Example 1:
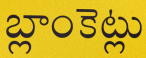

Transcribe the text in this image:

బ్లాంకెట్లు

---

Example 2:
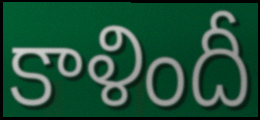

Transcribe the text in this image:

కాళిందీ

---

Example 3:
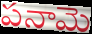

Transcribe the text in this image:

పనామె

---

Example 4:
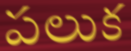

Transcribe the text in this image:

పలుక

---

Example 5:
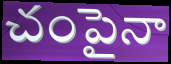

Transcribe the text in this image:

చంపైనా